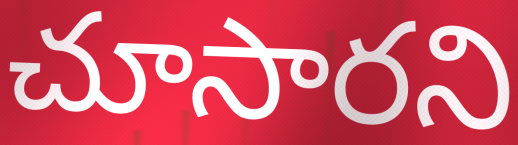
చూసారని